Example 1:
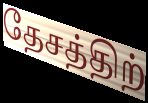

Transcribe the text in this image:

தேசத்திற்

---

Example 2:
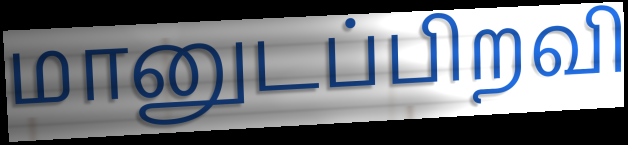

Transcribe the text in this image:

மானுடப்பிறவி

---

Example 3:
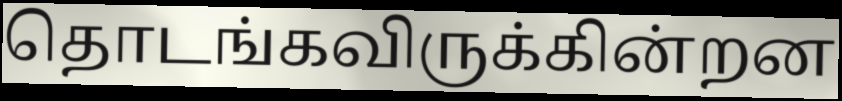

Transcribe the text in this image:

தொடங்கவிருக்கின்றன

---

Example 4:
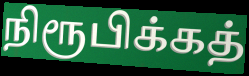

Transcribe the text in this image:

நிரூபிக்கத்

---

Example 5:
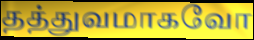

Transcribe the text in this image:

தத்துவமாகவோ